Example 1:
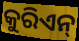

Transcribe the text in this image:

କୁରିଏନ୍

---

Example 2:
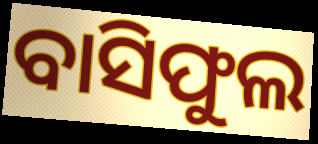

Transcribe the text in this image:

ବାସିଫୁଲ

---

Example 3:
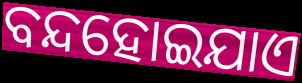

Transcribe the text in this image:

ବନ୍ଦହୋଇଯାଏ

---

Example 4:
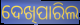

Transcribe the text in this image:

ଦେଖିପାରିଲ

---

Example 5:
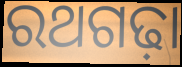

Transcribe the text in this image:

ରଥଗଢ଼ା